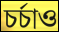
চৰ্চাও